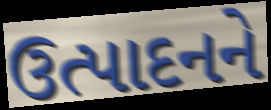
ઉત્પાદનને